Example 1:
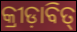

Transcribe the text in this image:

କ୍ରୀଡ଼ାବିତ୍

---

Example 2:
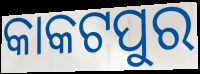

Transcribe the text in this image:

କାକଟପୁର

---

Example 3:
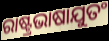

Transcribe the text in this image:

ରାଷ୍ଟ୍ରଭାଷାଯୁତଂ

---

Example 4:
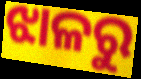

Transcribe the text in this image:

ଝାଳରୁ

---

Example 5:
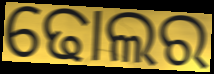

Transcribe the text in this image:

ଢୋଲର